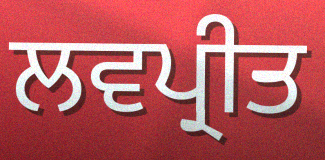
ਲਵਪ੍ਰੀਤ